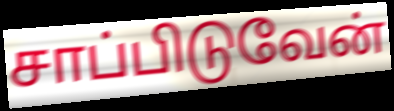
சாப்பிடுவேன்